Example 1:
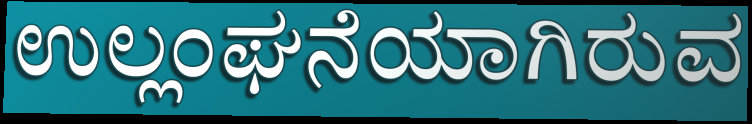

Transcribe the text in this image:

ಉಲ್ಲಂಘನೆಯಾಗಿರುವ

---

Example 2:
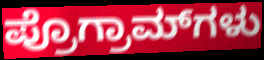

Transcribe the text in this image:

ಪ್ರೊಗ್ರಾಮ್‌ಗಳು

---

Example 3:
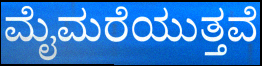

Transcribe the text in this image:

ಮೈಮರೆಯುತ್ತವೆ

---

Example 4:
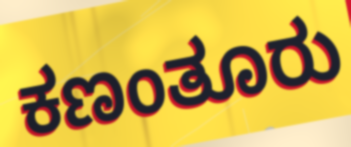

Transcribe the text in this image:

ಕಣಂತೂರು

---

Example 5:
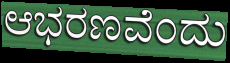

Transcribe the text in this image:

ಆಭರಣವೆಂದು